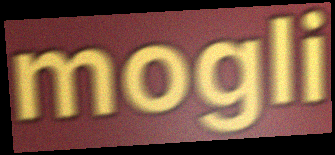
mogli